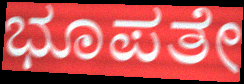
ಭೂಪತೇ